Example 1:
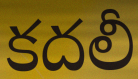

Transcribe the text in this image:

కదలీ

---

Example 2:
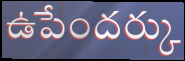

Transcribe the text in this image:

ఉపేందర్కు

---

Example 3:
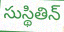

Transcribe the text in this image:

సుస్థితిన్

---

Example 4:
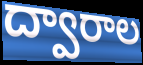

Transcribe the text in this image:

ద్వారాల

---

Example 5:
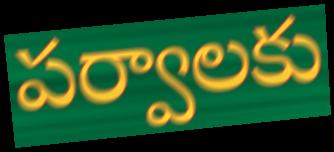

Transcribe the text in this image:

పర్వాలకు